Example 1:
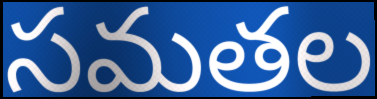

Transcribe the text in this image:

సమతల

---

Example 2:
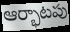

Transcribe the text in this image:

ఆర్భాటపు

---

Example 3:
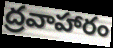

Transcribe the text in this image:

ద్రవాహారం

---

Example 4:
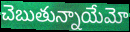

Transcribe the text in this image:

చెబుతున్నాయేమో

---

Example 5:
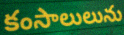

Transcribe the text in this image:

కంసాలులును